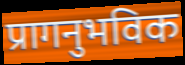
प्रागनुभविक